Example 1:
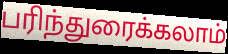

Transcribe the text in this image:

பரிந்துரைக்கலாம்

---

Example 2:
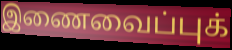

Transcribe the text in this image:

இணைவைப்புக்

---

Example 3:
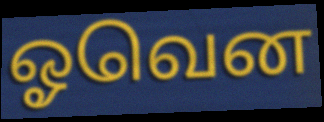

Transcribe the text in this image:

ஓவென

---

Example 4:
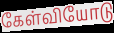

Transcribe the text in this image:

கேள்வியோடு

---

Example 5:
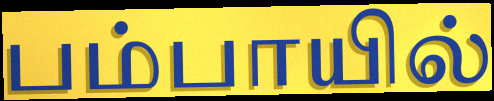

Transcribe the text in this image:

பம்பாயில்